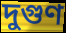
দুগুণ